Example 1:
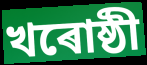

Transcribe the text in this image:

খৰোষ্ঠী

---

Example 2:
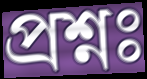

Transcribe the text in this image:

প্ৰশ্নঃ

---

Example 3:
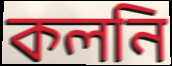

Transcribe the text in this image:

কলনি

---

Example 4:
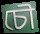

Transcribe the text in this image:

চৌ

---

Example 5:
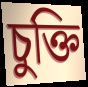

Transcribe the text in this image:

চুক্তি